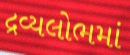
દ્રવ્યલોભમાં